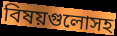
বিষয়গুলোসহ